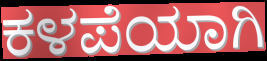
ಕಳಪೆಯಾಗಿ